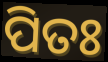
ପିତଃ